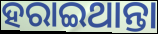
ହରାଇଥାନ୍ତା